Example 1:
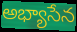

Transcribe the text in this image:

అభ్యాసేన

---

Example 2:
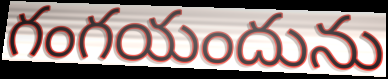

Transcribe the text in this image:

గంగయందును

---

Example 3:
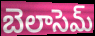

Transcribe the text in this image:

బెలాసెమ్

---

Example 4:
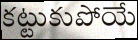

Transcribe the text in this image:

కట్టుకుపోయే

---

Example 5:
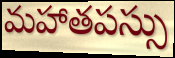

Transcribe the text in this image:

మహాతపస్సు